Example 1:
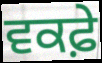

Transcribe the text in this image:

ਵਕਫ਼ੇ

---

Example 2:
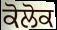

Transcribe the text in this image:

ਕੋਲੋਕ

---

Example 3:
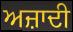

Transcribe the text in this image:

ਅਜ਼ਾਦੀ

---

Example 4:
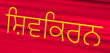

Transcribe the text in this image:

ਸ਼ਿਵਕਿਰਨ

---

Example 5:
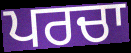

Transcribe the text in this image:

ਪਰਚਾ